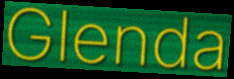
Glenda